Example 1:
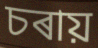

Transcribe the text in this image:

চৰায়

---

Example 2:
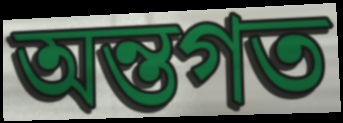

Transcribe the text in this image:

অন্তগত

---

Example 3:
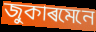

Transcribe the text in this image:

জুকাৰমেনে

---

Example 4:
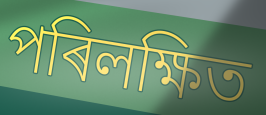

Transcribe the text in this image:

পৰিলক্ষিত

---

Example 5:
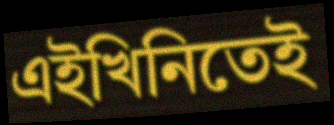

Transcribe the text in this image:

এইখিনিতেই